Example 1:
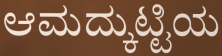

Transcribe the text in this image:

ಆಮದ್ಕುಟ್ಟಿಯ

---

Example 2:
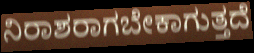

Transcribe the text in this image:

ನಿರಾಶರಾಗಬೇಕಾಗುತ್ತದೆ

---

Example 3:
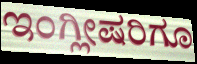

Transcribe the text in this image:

ಇಂಗ್ಲೀಷರಿಗೂ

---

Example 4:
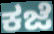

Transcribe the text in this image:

ಕಜೆ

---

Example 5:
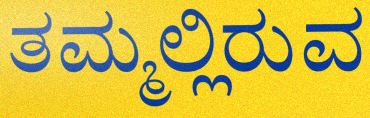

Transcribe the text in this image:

ತಮ್ಮಲ್ಲಿರುವ